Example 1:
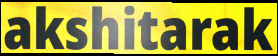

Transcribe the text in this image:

akshitarak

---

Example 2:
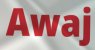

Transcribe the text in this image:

Awaj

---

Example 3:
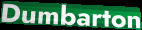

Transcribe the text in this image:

Dumbarton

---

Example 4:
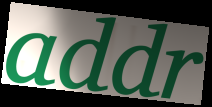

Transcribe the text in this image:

addr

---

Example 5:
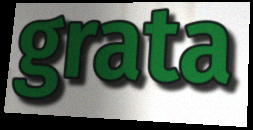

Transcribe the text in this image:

grata